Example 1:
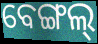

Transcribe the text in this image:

ବେଙ୍ଗଲ୍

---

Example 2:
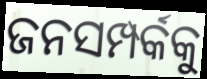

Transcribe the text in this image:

ଜନସମ୍ପର୍କକୁ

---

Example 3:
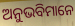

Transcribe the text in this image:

ଅନୁଭବିମାନେ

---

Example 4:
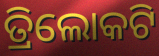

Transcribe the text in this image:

ତ୍ରିଲୋକଟି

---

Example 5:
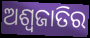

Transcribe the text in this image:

ଅଶ୍ୱଜାତିର